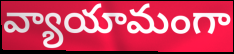
వ్యాయామంగా